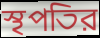
স্থপতির